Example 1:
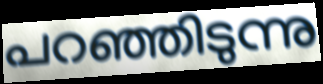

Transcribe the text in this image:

പറഞ്ഞിടുന്നു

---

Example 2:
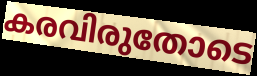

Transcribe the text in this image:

കരവിരുതോടെ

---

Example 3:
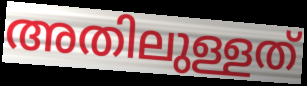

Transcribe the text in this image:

അതിലുള്ളത്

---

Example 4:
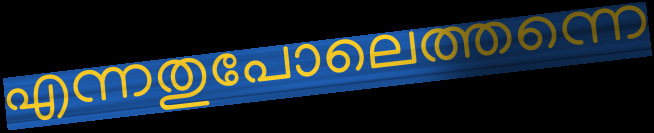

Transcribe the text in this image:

എന്നതുപോലെത്തന്നെ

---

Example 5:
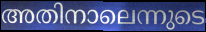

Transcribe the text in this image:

അതിനാലെന്നുടെ